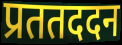
प्रततददन